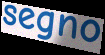
segno